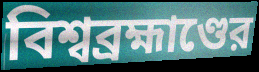
বিশ্বব্রহ্মাণ্ডের